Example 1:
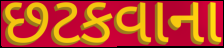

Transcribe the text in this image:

છટકવાના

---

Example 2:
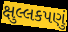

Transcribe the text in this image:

ક્ષુલ્લકપણું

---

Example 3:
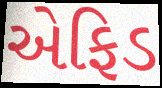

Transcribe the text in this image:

એફિડ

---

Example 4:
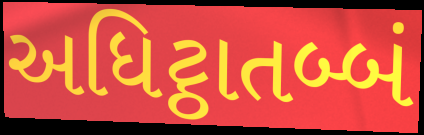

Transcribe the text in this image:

અધિટ્ઠાતબ્બં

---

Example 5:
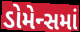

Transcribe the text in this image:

ડોમેન્સમાં